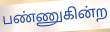
பண்ணுகின்ற